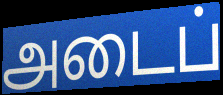
அடைப்